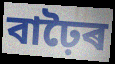
বাঢ়ৈৰ